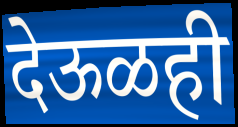
देऊळही